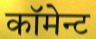
कॉमेन्ट